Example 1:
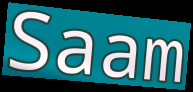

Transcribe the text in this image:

Saam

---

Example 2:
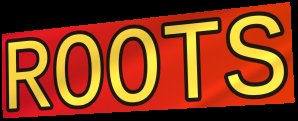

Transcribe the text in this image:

ROOTS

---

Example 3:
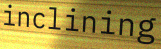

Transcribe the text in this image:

inclining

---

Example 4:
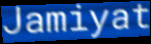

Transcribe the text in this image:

Jamiyat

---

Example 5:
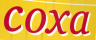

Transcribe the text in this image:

coxa